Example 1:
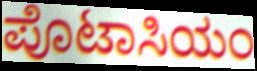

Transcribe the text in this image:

ಪೊಟಾಸಿಯಂ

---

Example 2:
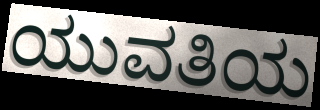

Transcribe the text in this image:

ಯುವತಿಯ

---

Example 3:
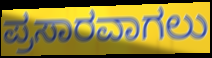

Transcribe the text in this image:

ಪ್ರಸಾರವಾಗಲು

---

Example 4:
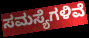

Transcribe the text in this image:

ಸಮಸ್ಯೆಗಳಿವೆ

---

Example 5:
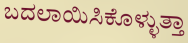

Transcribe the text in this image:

ಬದಲಾಯಿಸಿಕೊಳ್ಳುತ್ತಾ